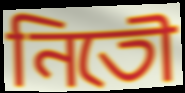
নিতৌ